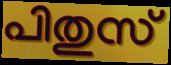
പിതുസ്